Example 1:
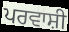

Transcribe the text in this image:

ਪਰਵਾਸ਼ੀ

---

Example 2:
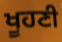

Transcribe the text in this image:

ਖੂਹਣੀ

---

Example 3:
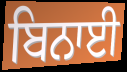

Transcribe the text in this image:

ਬਿਨਾਈ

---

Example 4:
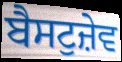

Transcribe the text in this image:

ਬੈਸਟੁਜ਼ੇਵ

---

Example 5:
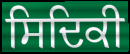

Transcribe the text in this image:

ਸਿਦਿਕੀ